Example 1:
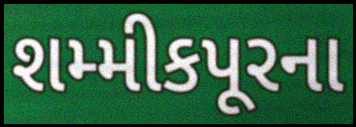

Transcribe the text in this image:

શમ્મીકપૂરના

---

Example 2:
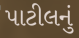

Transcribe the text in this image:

પાટીલનું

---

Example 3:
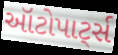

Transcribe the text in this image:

ઑટોપાર્ટ્સ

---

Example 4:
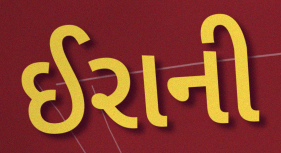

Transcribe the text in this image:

ઈરાની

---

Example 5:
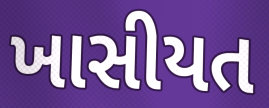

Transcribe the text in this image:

ખાસીયત